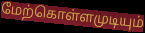
மேற்கொள்ளமுடியும்